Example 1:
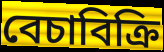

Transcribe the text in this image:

বেচাবিক্রি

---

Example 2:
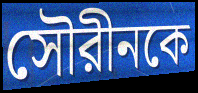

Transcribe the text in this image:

সৌরীনকে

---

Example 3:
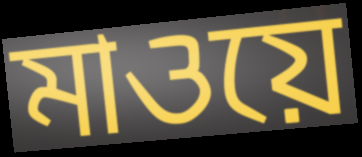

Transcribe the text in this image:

মাওয়ে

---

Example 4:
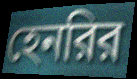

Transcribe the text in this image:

হেনরির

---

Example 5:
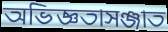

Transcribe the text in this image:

অভিজ্ঞতাসঞ্জাত